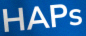
HAPs